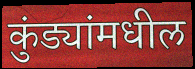
कुंड्यांमधील